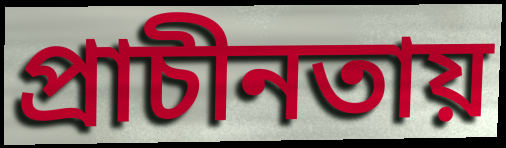
প্রাচীনতায়